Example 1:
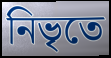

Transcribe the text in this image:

নিভৃতে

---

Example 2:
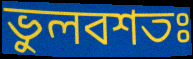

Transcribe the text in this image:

ভুলবশতঃ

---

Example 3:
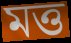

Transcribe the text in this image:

মত্ত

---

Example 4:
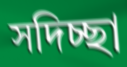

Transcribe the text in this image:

সদিচ্ছা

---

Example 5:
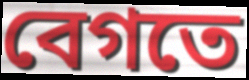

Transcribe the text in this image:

বেগতে